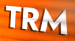
TRM